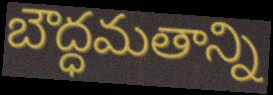
బౌద్ధమతాన్ని